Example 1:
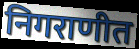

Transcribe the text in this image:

निगराणीत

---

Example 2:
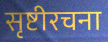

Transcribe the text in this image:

सृष्टीरचना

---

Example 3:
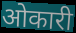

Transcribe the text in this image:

ओकारी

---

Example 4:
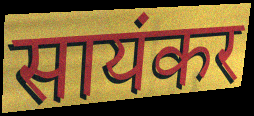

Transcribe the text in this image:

सायंकर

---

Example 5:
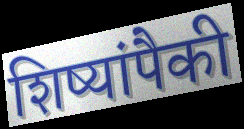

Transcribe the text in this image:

शिष्यांपैकी